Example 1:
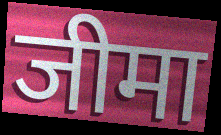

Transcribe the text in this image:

जीमा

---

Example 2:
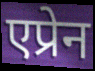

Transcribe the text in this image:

एप्रेन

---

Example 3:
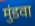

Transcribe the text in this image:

मुंडवा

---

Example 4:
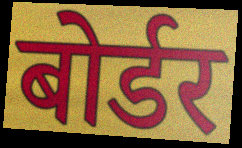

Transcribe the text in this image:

बोर्डर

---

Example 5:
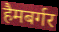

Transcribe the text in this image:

हैमबर्गर